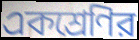
একশ্রেণির